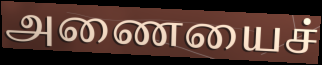
அணையைச்